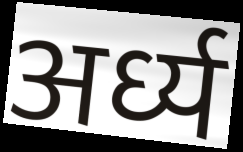
अर्ध्य